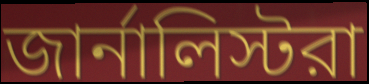
জার্নালিস্টরা